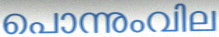
പൊന്നുംവില